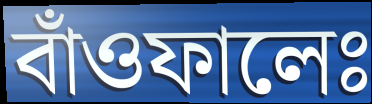
বাঁওফালেঃ